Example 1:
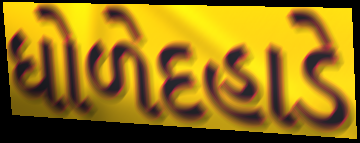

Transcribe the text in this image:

ધોળેદહાડે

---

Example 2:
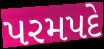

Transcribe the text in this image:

પરમપદે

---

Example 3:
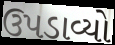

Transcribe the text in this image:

ઉપડાવ્યો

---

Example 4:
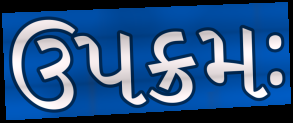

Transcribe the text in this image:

ઉપક્રમઃ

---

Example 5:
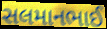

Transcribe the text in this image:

સલમાનભાઈ